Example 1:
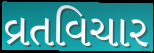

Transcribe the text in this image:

વ્રતવિચાર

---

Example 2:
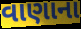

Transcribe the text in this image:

વાણાના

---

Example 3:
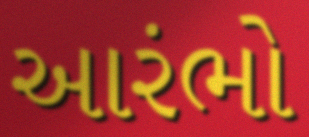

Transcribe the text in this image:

આરંભો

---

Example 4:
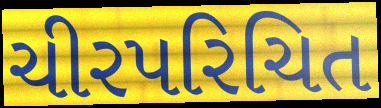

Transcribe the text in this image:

ચીરપરિચિત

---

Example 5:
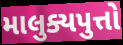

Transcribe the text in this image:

માલુક્યપુત્તો